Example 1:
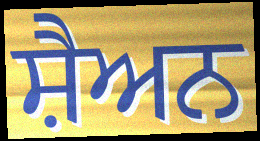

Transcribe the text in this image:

ਸ਼ੈਅਨ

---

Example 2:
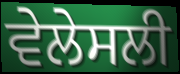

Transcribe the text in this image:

ਵੇਲੇਸਲੀ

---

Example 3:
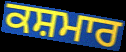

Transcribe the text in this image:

ਕਸ਼ਮਾਰ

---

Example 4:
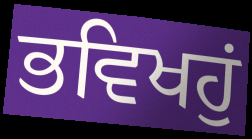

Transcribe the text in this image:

ਭਵਿਖਹੁਂ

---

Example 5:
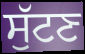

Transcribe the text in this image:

ਸੁੱਟਣ